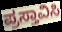
ಪ್ರಸ್ತಾವಿಸಿ